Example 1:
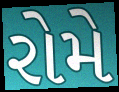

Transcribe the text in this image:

રોમે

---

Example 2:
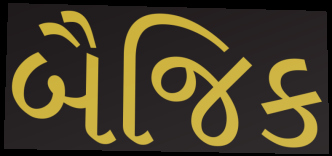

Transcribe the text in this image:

બૈજિક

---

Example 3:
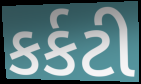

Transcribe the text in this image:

કર્કટી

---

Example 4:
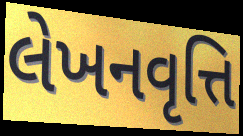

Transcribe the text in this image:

લેખનવૃત્તિ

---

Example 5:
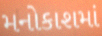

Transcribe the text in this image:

મનોકાશમાં